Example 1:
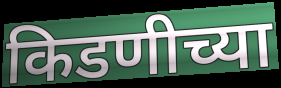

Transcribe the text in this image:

किडणीच्या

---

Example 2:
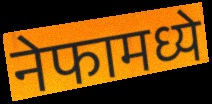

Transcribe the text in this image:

नेफामध्ये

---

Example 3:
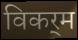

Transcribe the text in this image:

विकर्म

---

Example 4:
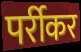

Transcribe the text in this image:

पर्रीकर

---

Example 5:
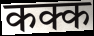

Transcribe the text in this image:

कक्क